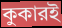
কুকারই